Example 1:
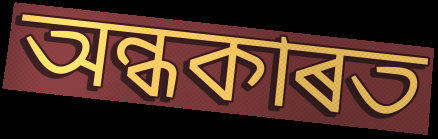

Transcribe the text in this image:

অন্ধকাৰত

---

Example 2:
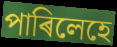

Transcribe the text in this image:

পাৰিলেহে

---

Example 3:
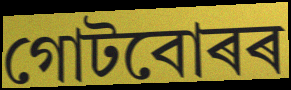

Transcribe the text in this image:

গোটবোৰৰ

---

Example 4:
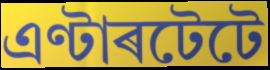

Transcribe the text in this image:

এণ্টাৰটেটে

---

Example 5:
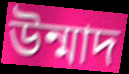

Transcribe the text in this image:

উন্মাদ